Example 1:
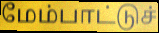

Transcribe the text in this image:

மேம்பாட்டுச்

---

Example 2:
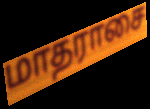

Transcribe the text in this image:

மாதராசை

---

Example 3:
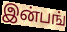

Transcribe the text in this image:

இன்பங்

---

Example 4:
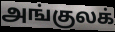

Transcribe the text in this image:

அங்குலக்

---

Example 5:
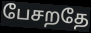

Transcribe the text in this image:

பேசறதே